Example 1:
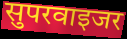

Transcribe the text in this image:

सुपरवाइजर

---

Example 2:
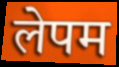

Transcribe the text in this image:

लेपम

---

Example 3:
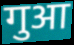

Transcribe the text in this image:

गुआ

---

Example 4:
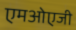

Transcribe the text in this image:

एमओएजी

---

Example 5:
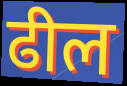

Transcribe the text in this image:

ढील